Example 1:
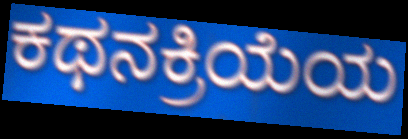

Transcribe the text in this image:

ಕಥನಕ್ರಿಯೆಯ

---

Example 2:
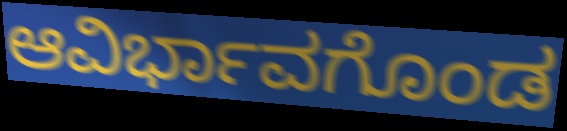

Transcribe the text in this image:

ಆವಿರ್ಭಾವಗೊಂಡ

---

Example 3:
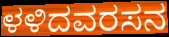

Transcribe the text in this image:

ಳಳಿದವರಸನ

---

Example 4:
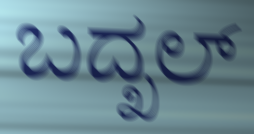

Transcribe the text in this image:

ಬದ್ಖಲ್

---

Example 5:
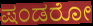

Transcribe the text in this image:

ಷಂಡರೋ